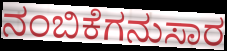
ನಂಬಿಕೆಗನುಸಾರ